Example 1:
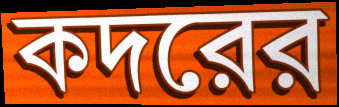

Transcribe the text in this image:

কদরের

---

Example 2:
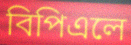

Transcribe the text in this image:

বিপিএলে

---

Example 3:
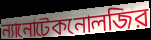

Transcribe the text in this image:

ন্যানোটেকনোলজির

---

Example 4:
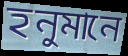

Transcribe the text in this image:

হনুমানে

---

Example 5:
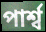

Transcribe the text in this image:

পার্শ্ব